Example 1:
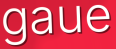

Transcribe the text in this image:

gaue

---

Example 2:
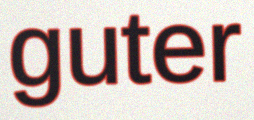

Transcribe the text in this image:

guter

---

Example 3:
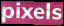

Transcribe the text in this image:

pixels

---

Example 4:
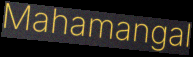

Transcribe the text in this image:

Mahamangal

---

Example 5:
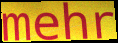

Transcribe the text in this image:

mehr